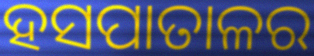
ହସପାତାଳର